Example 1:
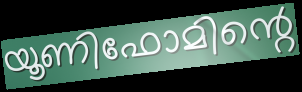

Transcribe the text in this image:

യൂണിഫോമിന്റെ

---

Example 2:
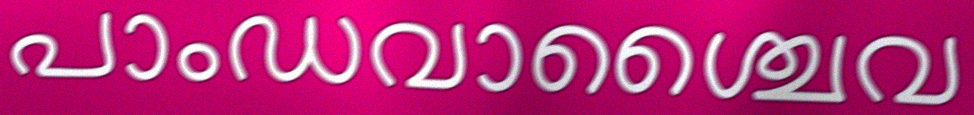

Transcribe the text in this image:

പാംഡവാശ്ചൈവ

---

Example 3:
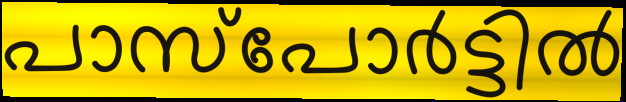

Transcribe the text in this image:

പാസ്പോർട്ടിൽ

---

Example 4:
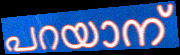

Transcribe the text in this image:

പറയാന്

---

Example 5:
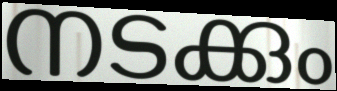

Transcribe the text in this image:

നടക്കും